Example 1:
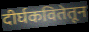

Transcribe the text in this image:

दीर्घकवितेतून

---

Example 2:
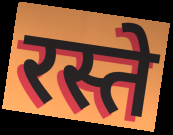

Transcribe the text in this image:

रस्ते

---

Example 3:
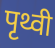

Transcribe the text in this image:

पृथ्वी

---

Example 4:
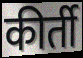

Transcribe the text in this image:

कीर्ती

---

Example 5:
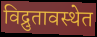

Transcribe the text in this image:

विद्रुतावस्थेत